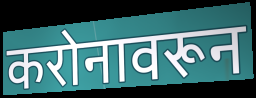
करोनावरून